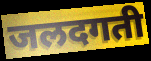
जलदगती